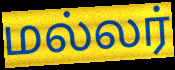
மல்லர்